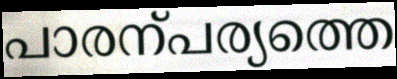
പാരന്പര്യത്തെ